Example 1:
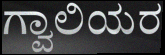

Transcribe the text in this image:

ಗ್ವಾಲಿಯರ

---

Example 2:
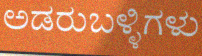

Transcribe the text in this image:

ಅಡರುಬಳ್ಳಿಗಳು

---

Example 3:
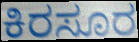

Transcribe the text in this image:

ಕಿರಸೂರ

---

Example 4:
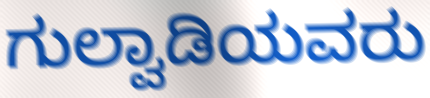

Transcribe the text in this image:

ಗುಲ್ವಾಡಿಯವರು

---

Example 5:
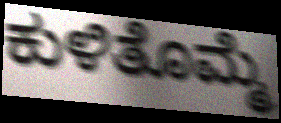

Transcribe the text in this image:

ಕುಳಿತೊಮ್ಮೆ